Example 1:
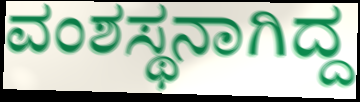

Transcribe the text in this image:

ವಂಶಸ್ಥನಾಗಿದ್ದ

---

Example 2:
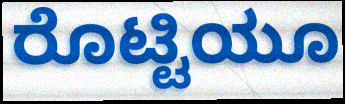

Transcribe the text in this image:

ರೊಟ್ಟಿಯೂ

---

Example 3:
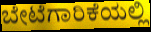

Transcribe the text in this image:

ಬೇಟೆಗಾರಿಕೆಯಲ್ಲಿ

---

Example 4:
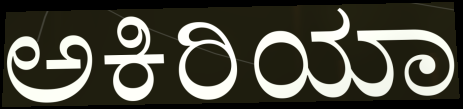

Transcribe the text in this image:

ಅಕಿರಿಯಾ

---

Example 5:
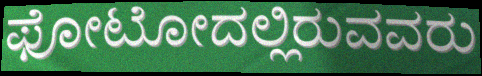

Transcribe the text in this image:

ಫೋಟೋದಲ್ಲಿರುವವರು